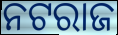
ନଟରାଜ